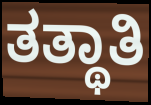
ತತ್ಥಾತಿ